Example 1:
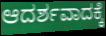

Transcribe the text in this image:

ಆದರ್ಶವಾದಕ್ಕೆ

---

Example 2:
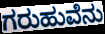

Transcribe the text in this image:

ಗರುಹುವೆನು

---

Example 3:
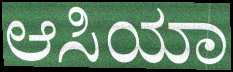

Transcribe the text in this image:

ಆಸಿಯಾ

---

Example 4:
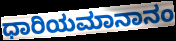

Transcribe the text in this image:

ಧಾರಿಯಮಾನಾನಂ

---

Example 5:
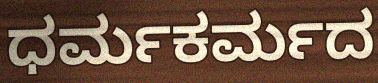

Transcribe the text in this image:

ಧರ್ಮಕರ್ಮದ